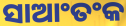
ସାଆଂତଂକ